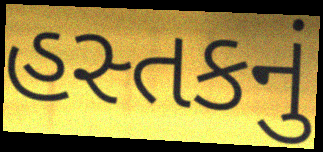
હસ્તકનું